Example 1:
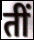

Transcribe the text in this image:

तीं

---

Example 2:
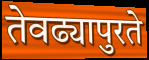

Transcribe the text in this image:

तेवढ्यापुरते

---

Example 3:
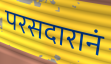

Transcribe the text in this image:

परसदारानं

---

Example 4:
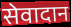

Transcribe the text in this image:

सेवादान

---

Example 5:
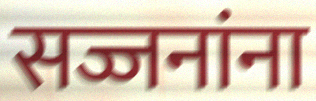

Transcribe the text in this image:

सज्जनांना